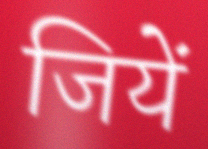
जियें